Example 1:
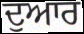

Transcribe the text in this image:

ਦੁਆਰ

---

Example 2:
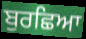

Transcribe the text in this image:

ਬੁਰਛਿਆ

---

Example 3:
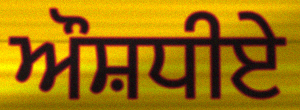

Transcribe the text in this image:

ਔਸ਼ਧੀਏ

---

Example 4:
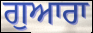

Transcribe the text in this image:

ਗੁਆਰਾ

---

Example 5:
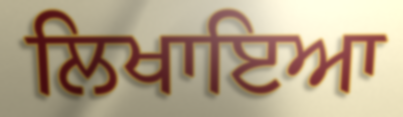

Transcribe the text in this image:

ਲਿਖਾਇਆ